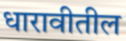
धारावीतील